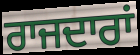
ਰਾਜਦਾਰਾਂ